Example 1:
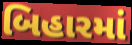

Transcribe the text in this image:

બિહારમાં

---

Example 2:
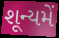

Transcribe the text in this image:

શૂન્યમેં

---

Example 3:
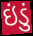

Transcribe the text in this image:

ઇંડું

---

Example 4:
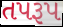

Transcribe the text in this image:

તપરૂપ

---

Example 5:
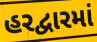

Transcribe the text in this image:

હરદ્વારમાં